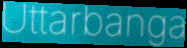
Uttarbanga